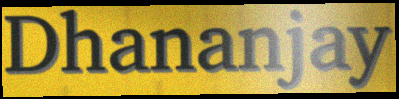
Dhananjay